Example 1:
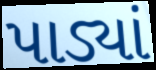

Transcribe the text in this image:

પાડ્યાં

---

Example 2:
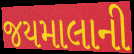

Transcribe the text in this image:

જયમાલાની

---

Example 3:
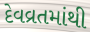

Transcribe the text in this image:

દેવવ્રતમાંથી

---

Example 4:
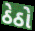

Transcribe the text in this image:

ઠેઠો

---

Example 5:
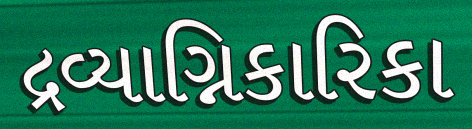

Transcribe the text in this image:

દ્રવ્યાગ્નિકારિકા